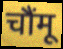
चौंमू